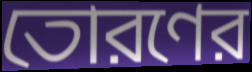
তোরণের